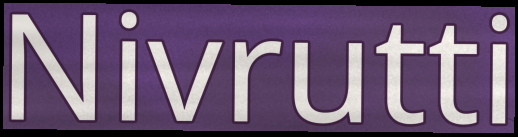
Nivrutti